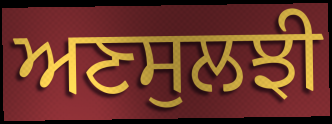
ਅਣਸੁਲਝੀ